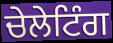
ਚੇਲੇਟਿੰਗ